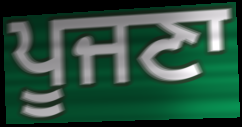
ਪੂਜਣਾ